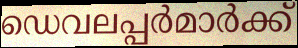
ഡെവലപ്പർമാർക്ക്